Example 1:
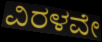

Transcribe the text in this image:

ವಿರಳವೇ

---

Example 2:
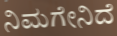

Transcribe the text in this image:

ನಿಮಗೇನಿದೆ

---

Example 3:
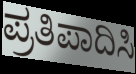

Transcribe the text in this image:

ಪ್ರತಿಪಾದಿಸಿ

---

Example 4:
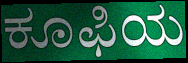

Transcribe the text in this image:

ಕೂಫಿಯ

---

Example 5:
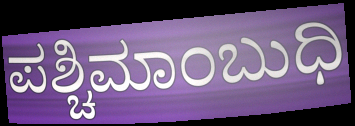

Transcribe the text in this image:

ಪಶ್ಚಿಮಾಂಬುಧಿ